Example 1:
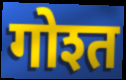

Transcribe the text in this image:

गोश्त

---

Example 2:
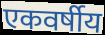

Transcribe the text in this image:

एकवर्षीय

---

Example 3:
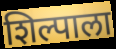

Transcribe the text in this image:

शिल्पाला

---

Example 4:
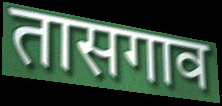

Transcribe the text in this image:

तासगाव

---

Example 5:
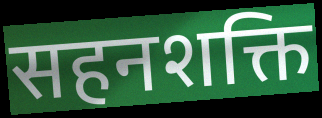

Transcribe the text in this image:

सहनशक्ति